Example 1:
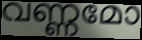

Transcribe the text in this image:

വണ്ണമോ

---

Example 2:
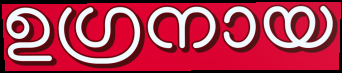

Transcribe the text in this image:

ഉഗ്രനായ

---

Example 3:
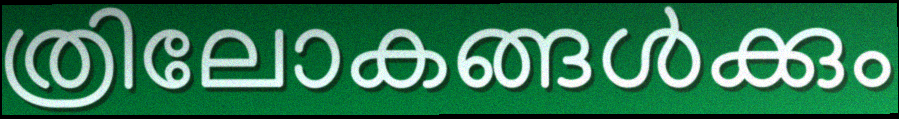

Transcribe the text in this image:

ത്രിലോകങ്ങൾക്കും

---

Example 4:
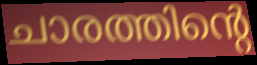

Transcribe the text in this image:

ചാരത്തിന്റെ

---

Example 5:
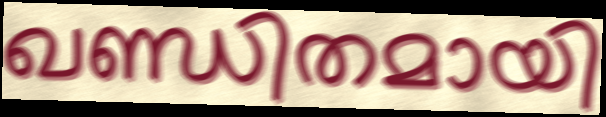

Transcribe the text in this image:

ഖണ്ഡിതമായി